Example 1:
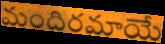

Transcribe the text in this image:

మందిరమాయే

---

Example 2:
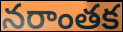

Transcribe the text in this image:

నరాంతక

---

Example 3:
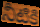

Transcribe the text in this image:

నీటికి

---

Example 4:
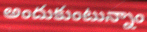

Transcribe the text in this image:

అందుకుంటున్నాం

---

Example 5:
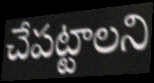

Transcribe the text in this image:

చేపట్టాలని